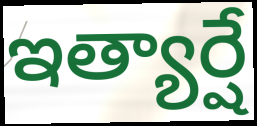
ఇత్యార్షే